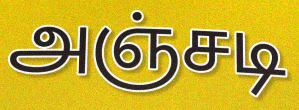
அஞ்சடி